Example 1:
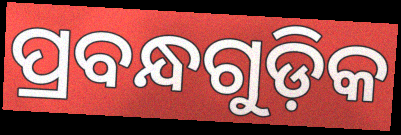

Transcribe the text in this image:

ପ୍ରବନ୍ଧଗୁଡ଼ିକ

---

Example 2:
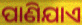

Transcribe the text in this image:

ପାଣିଯାଏ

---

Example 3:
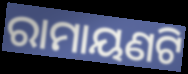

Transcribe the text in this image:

ରାମାୟଣଟି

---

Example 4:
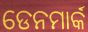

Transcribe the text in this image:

ଡେନମାର୍କ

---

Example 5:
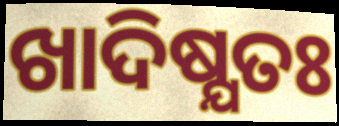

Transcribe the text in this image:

ଖାଦିଷ୍ଯତଃ